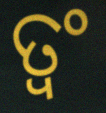
ତ୍ୱଂ